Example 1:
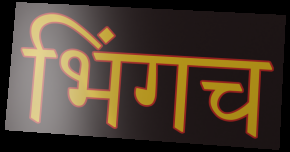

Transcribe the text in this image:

भिंगच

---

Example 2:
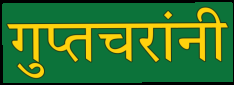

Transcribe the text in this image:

गुप्तचरांनी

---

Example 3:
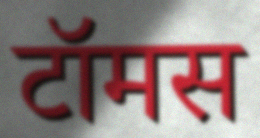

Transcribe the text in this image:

टॉमस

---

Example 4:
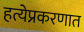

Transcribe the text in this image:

हत्येप्रकरणात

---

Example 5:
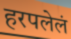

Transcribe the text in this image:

हरपलेलं